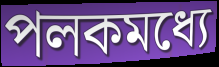
পলকমধ্যে